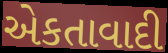
એકતાવાદી